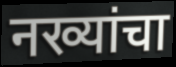
नख्यांचा